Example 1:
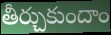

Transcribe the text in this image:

తీర్చుకుందాం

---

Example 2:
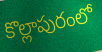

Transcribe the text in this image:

కొల్లాపురంలో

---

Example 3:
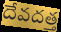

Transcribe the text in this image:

దేవదత్త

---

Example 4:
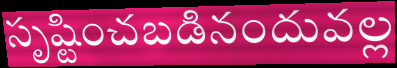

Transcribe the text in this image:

సృష్టించబడినందువల్ల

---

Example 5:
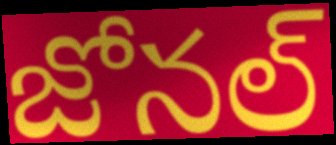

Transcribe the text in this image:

జోనల్